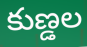
కుణ్డల